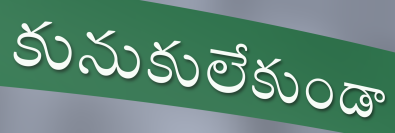
కునుకులేకుండా